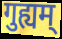
गुह्यम्